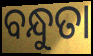
ବନ୍ଧୁତା